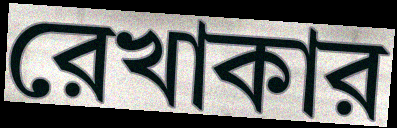
রেখাকার